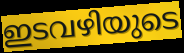
ഇടവഴിയുടെ